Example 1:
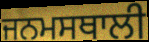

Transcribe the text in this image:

ਜਨਮਸਥਾਲੀ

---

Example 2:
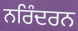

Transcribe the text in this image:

ਨਰਿੰਦਰਨ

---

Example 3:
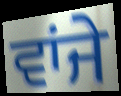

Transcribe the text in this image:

ਵਾਂਜੇ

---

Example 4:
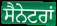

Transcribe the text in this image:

ਸੈਨੇਟਰਾਂ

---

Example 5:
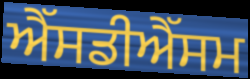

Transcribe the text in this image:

ਐੱਸਡੀਐੱਸਮ